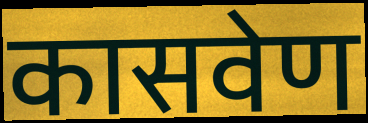
कासवेण